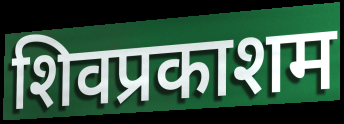
शिवप्रकाशम